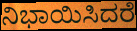
ನಿಭಾಯಿಸಿದರೆ